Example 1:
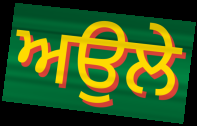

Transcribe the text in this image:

ਅਉਲੇ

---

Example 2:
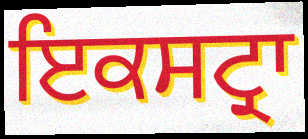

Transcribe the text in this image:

ਇਕਸਟ੍ਰਾ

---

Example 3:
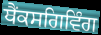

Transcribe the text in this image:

ਥੈਂਕਸਗਿਵਿੰਗ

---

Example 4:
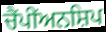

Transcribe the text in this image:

ਚੈਂਪੀਂਅਨਸ਼ਿਪ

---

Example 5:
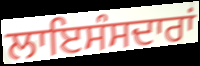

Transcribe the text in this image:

ਲਾਇਸੰਸਦਾਰਾਂ